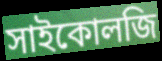
সাইকোলজি